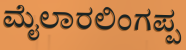
ಮೈಲಾರಲಿಂಗಪ್ಪ